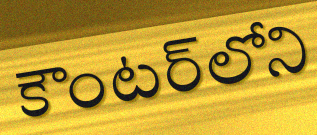
కౌంటర్‌లోని